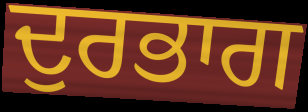
ਦੁਰਭਾਗ